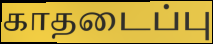
காதடைப்பு